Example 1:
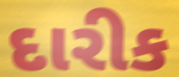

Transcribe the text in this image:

દારીક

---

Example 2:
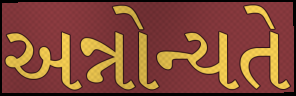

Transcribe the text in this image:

અન્નોન્યતે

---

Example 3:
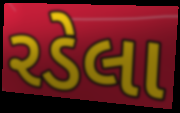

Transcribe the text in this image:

રડેલા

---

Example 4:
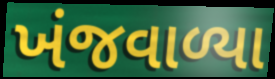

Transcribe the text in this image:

ખંજવાળ્યા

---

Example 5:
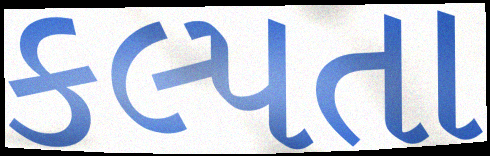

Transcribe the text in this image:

કલ્પતા